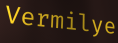
Vermilye